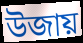
উজায়